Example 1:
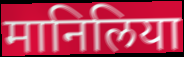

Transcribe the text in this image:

मानिलिया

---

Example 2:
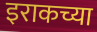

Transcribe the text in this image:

इराकच्या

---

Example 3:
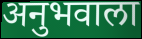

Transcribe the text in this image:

अनुभवाला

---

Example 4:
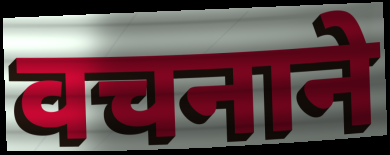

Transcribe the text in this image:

वचनाने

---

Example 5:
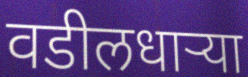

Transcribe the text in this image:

वडीलधाऱ्या